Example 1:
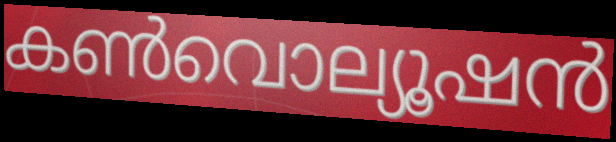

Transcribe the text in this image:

കൺവൊല്യൂഷൻ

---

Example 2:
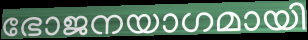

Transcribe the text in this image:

ഭോജനയാഗമായി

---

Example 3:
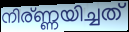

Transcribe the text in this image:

നിര്ണ്ണയിച്ചത്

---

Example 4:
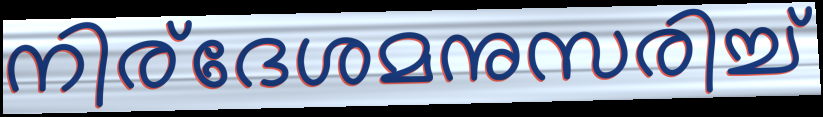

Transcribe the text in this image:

നിര്ദേശമനുസരിച്ച്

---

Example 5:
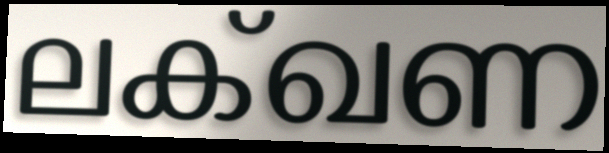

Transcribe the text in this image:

ലക്ഖണ